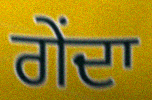
ਗੇਂਦਾ